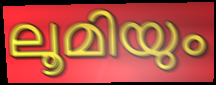
ലൂമിയും